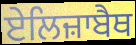
ਏਲਿਜ਼ਾਬੈਥ